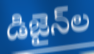
డిజైన్‌ల